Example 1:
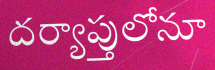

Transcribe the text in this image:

దర్యాప్తులోనూ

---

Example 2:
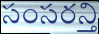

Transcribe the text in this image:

సంసరన్తి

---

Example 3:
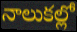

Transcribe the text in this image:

నాలుకల్లో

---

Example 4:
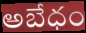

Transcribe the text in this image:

అబేధం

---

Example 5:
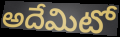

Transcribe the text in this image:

అదేమిటో